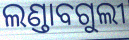
ଲଣ୍ଡାବଗୁଲୀ